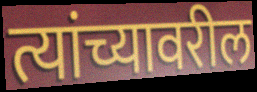
त्यांच्यावरील